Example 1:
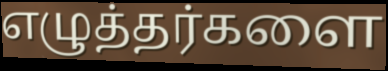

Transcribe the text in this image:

எழுத்தர்களை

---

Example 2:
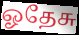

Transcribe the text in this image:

ஓதேசு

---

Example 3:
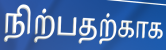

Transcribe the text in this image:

நிற்பதற்காக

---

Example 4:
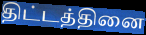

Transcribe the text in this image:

திட்டத்தினை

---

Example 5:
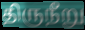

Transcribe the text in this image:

திருநீறு